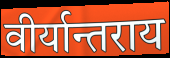
वीर्यान्तराय